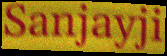
Sanjayji